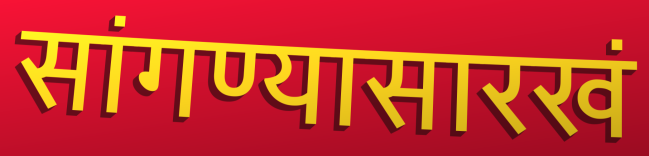
सांगण्यासारखं